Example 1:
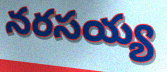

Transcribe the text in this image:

నరసయ్య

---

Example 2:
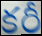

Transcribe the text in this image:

కరీ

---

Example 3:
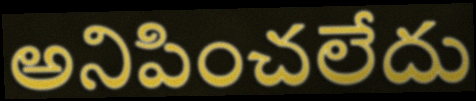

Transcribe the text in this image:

అనిపించలేదు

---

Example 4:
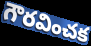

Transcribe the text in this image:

గౌరవించక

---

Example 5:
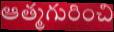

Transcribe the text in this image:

ఆత్మగురించి